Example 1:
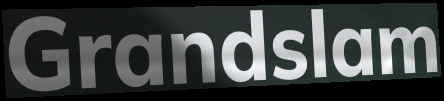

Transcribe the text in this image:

Grandslam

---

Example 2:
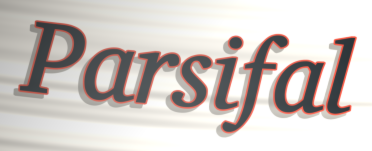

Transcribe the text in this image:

Parsifal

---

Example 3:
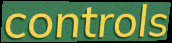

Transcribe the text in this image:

controls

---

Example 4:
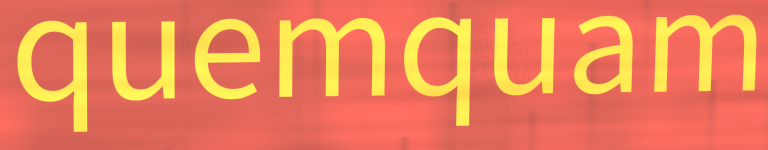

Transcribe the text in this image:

quemquam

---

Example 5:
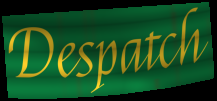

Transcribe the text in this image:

Despatch